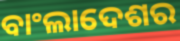
ବାଂଲାଦେଶର